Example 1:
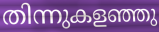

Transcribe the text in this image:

തിന്നുകളഞ്ഞു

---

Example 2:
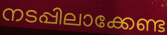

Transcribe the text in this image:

നടപ്പിലാക്കേണ്ട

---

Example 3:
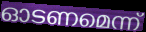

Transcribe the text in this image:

ഓടണമെന്ന്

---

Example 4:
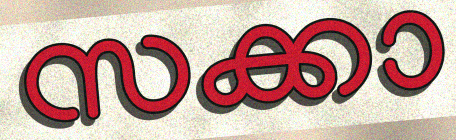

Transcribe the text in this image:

സക്കാ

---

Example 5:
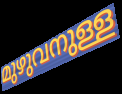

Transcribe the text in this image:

മുഴുവനുള്ള